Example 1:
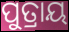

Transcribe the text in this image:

ପୁତ୍ରାୟ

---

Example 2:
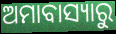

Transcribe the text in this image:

ଅମାବାସ୍ୟାରୁ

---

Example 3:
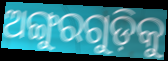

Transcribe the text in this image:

ଅଙ୍ଗୁରଗୁଡ଼ିକୁ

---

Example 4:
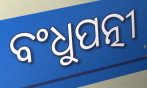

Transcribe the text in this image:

ବଂଧୁପତ୍ନୀ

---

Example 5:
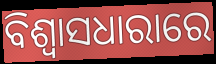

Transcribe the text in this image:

ବିଶ୍ଵାସଧାରାରେ